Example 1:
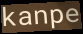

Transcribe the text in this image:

kanpe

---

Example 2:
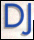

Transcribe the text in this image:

DJ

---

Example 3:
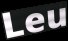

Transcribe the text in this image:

Leu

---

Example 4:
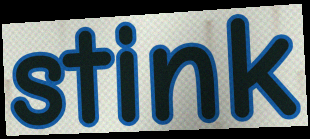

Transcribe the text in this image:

stink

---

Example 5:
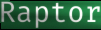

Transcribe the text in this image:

Raptor